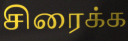
சிரைக்க